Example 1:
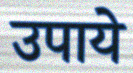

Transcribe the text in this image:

उपाये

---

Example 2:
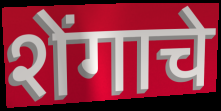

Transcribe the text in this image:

शेंगाचे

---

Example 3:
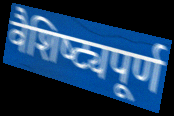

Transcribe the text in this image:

वैशिष्‍ट्यपूर्ण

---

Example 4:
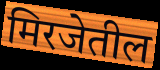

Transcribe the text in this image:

मिरजेतील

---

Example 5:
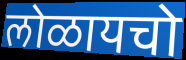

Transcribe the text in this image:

लोळायचो